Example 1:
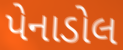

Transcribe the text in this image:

પેનાડોલ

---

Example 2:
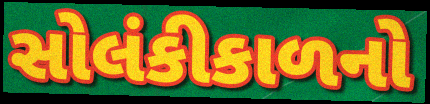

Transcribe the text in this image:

સોલંકીકાળનો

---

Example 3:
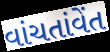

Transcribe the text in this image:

વાંચતાંવેંત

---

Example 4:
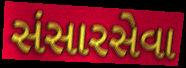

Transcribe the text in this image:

સંસારસેવા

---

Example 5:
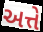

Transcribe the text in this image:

અત્તે